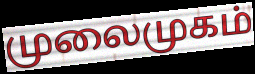
முலைமுகம்